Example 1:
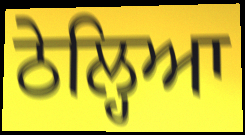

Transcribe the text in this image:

ਠੇਲ੍ਹਿਆ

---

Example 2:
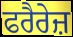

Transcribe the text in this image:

ਫਰੈਰੇਜ਼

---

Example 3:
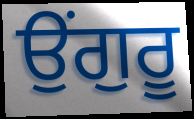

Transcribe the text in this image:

ਉਂਗੁਰੂ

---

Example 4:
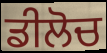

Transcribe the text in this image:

ਡੀਲੋਚ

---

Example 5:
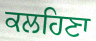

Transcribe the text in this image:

ਕਲਹਿਣਾ